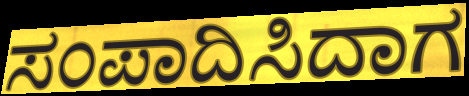
ಸಂಪಾದಿಸಿದಾಗ